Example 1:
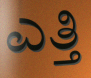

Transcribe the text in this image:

ಎತ್ತಿ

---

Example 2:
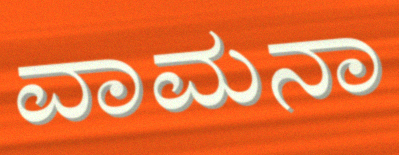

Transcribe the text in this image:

ವಾಮನಾ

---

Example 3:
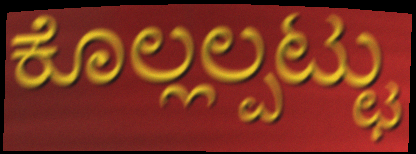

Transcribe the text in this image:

ಕೊಲ್ಲಲ್ಪಟ್ಟು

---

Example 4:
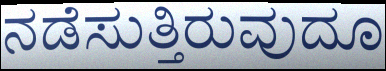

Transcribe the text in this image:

ನಡೆಸುತ್ತಿರುವುದೂ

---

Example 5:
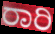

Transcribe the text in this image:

ರಾರಿ